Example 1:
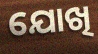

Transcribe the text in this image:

ଯୋଖି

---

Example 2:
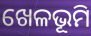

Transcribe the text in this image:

ଖେଳଭୂମି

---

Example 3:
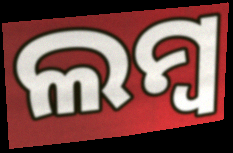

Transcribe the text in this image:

ଲମ୍ୱ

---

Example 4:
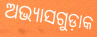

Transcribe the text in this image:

ଅଭ୍ୟାସଗୁଡ଼ାକ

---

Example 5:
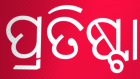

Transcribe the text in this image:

ପ୍ରତିଷ୍ଟା